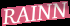
RAINN